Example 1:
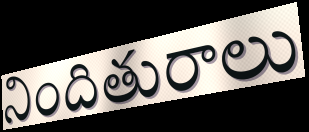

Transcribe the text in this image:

నిందితురాలు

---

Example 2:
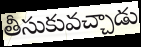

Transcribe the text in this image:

తీసుకువచ్చాడు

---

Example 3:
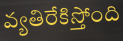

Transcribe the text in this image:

వ్యతిరేకిస్తోంది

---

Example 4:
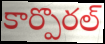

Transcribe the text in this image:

కార్పొరల్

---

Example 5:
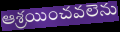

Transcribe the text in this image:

ఆశ్రయించవలెను